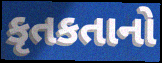
કૃતકતાનો